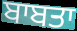
ਬਾਬਤਾ